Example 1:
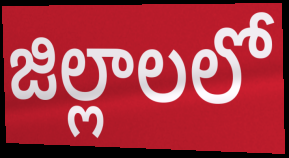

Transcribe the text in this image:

జిల్లాలలో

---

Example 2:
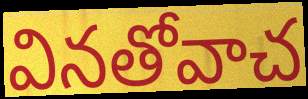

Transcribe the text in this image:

వినతోవాచ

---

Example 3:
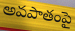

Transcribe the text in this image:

అవపాతంపై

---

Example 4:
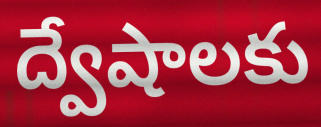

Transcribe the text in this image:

ద్వేషాలకు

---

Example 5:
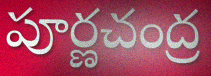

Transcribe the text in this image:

పూర్ణచంద్ర